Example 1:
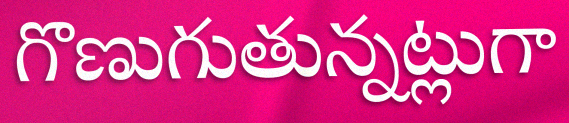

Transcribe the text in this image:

గొణుగుతున్నట్లుగా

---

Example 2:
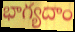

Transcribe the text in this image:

భాగ్యదాం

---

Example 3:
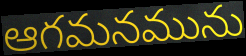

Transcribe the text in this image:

ఆగమనమును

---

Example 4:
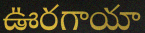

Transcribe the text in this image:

ఊరగాయా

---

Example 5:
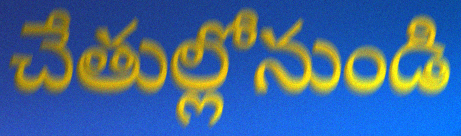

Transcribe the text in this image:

చేతుల్లోనుండి